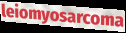
leiomyosarcoma